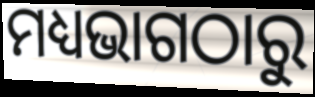
ମଧ୍ୟଭାଗଠାରୁ